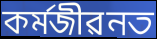
কৰ্মজীৱনত